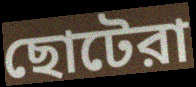
ছোটেরা